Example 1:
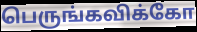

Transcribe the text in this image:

பெருங்கவிக்கோ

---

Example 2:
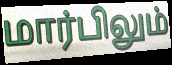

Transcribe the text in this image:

மார்பிலும்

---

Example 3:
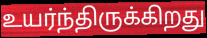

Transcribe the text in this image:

உயர்ந்திருக்கிறது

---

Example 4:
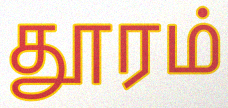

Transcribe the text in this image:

தூரம்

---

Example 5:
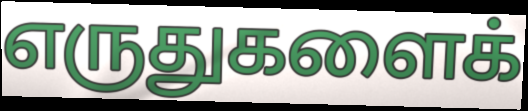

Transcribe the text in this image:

எருதுகளைக்